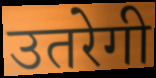
उतरेगी